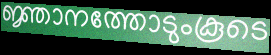
ജ്ഞാനത്തോടുംകൂടെ